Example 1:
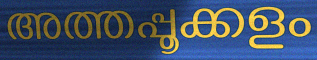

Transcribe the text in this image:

അത്തപ്പൂക്കളം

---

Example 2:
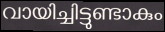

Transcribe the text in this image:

വായിച്ചിട്ടുണ്ടാകും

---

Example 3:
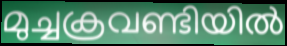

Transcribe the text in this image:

മുച്ചക്രവണ്ടിയിൽ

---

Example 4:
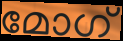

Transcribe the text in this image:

മോഗ്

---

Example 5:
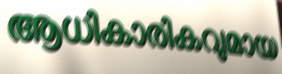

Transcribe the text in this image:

ആധികാരികവുമായ